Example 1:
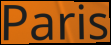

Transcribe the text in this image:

Paris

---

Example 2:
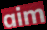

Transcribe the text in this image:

aim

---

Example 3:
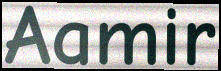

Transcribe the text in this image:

Aamir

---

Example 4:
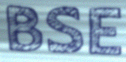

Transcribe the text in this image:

BSE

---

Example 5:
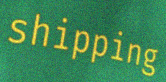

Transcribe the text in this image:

shipping